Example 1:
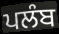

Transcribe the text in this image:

ਪਲੰਬ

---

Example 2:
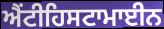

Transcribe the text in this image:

ਐਂਟੀਹਿਸਟਾਮਾਈਨ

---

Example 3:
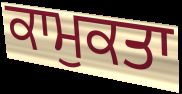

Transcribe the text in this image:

ਕਾਮੁਕਤਾ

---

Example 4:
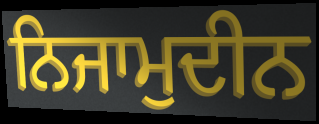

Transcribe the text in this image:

ਨਿਜਾਮੁਦੀਨ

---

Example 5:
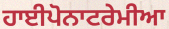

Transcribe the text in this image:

ਹਾਈਪੋਨਾਟਰੇਮੀਆ